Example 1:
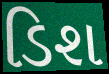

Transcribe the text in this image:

ડિશ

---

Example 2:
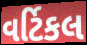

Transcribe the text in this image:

વર્ટિકલ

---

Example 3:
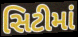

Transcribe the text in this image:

સિટીમાં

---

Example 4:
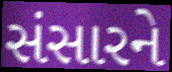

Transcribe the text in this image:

સંસારને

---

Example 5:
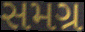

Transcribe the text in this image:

સમગ્ર